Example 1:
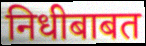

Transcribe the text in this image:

निधीबाबत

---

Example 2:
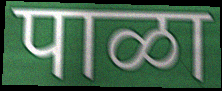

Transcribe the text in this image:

पाळा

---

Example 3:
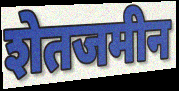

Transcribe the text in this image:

शेतजमीन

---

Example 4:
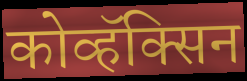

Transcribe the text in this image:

कोव्हॅक्सिन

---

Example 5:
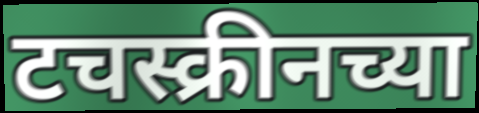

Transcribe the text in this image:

टचस्क्रीनच्या